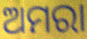
ଅମରା